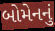
બોમેનનું